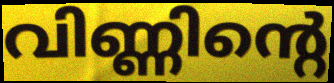
വിണ്ണിന്റെ